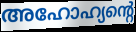
അഹോഹ്യന്റെ